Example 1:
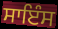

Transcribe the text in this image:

ਸਾਇੰਸ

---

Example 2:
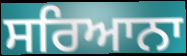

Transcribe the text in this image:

ਸਰਿਆਨਾ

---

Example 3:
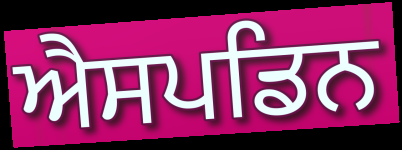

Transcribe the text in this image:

ਐਸਪਡਿਨ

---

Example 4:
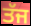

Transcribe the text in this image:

ਤੱਜ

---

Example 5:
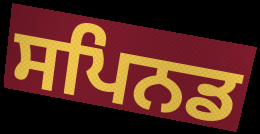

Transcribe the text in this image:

ਸਪਿਨਡ